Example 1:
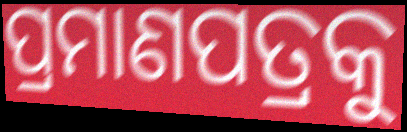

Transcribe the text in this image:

ପ୍ରମାଣପତ୍ରକୁ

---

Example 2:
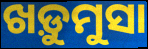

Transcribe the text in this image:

ଖଡ଼ୁମୁସା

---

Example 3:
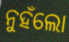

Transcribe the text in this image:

ନୁହଁଲୋ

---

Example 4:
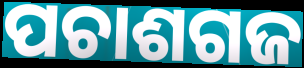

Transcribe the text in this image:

ପଚାଶଗଜ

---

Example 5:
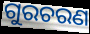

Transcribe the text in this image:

ଗୁରଚରଣ